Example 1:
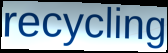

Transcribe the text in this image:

recycling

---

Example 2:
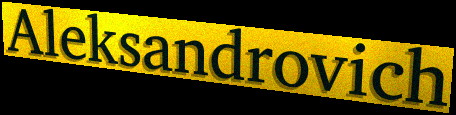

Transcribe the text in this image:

Aleksandrovich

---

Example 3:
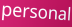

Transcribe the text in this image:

personal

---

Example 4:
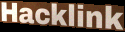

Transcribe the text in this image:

Hacklink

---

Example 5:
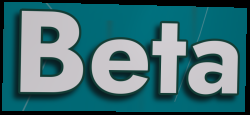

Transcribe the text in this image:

Beta